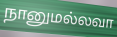
நானுமல்லவா